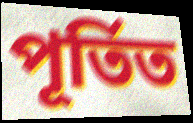
পূৰ্তিত